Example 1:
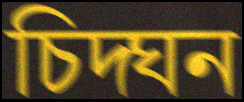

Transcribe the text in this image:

চিদ্ঘন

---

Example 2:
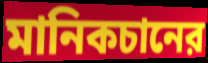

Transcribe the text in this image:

মানিকচানের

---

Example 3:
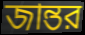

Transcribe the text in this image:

জান্তর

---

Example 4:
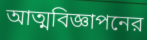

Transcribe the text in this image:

আত্মবিজ্ঞাপনের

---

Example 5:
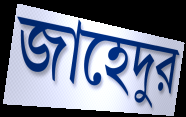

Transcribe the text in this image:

জাহেদুর